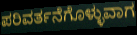
ಪರಿವರ್ತನೆಗೊಳ್ಳುವಾಗ